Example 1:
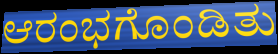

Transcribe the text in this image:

ಆರಂಭಗೊಂಡಿತು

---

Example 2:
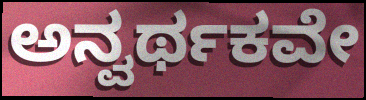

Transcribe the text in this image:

ಅನ್ವರ್ಥಕವೇ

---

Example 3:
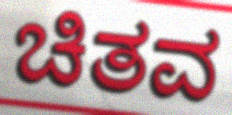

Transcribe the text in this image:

ಚಿತವ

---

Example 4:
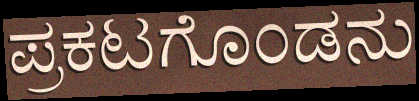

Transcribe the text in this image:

ಪ್ರಕಟಗೊಂಡನು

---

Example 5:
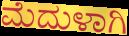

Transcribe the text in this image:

ಮೆದುಳಾಗಿ